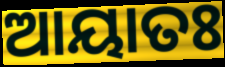
ଆୟାତଃ